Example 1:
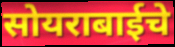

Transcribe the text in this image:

सोयराबाईचे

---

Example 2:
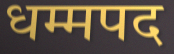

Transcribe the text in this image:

धम्मपद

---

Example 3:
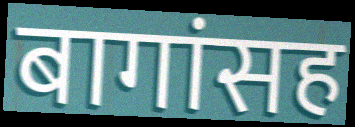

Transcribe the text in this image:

बागांसह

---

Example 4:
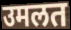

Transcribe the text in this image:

उमलत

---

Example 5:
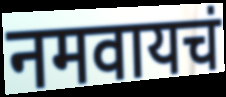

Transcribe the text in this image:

नमवायचं